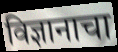
विज्ञानाचा